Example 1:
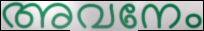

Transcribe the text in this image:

അവനേം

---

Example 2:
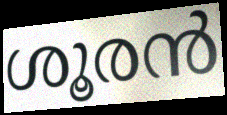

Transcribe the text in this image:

ശൂരൻ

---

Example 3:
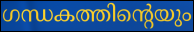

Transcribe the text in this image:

ഗന്ധകത്തിന്റെയും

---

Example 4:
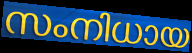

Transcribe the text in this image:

സംനിധായ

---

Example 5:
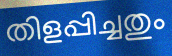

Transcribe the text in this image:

തിളപ്പിച്ചതും